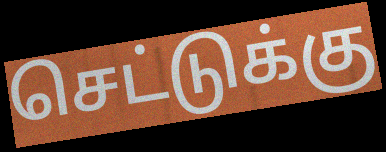
செட்டுக்கு